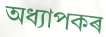
অধ্যাপকৰ